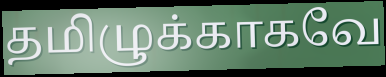
தமிழுக்காகவே